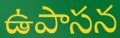
ఉపాసన